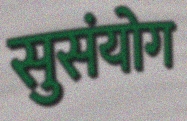
सुसंयोग